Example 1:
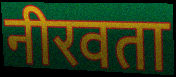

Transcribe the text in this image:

नीरवता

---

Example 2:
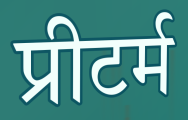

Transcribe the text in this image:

प्रीटर्म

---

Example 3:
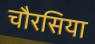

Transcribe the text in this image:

चौरसिया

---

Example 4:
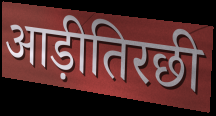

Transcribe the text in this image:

आड़ीतिरछी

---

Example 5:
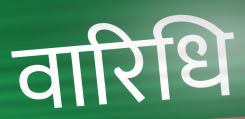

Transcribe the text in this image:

वारिधि